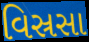
વિસ્રસા